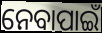
ନେବାପାଇଁ